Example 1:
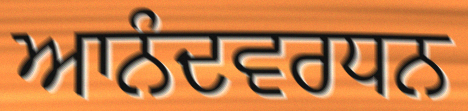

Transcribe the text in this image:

ਆਨੰਦਵਰਧਨ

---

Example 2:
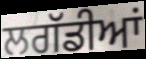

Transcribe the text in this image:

ਲਗੱਡੀਆਂ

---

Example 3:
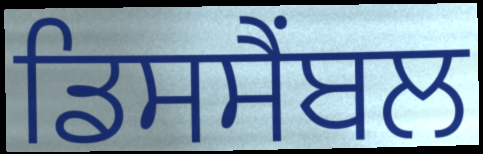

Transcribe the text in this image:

ਡਿਸਸੈਂਬਲ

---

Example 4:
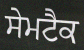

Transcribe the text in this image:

ਸੇਮਟੈਕ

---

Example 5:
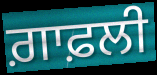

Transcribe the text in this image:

ਗ਼ਾਫ਼ਲੀ